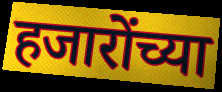
हजारोंच्या